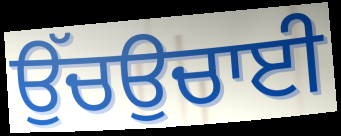
ਉੱਚਉਚਾਈ